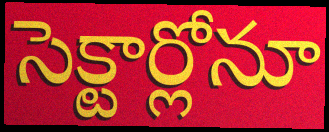
సెక్టార్లోనూ